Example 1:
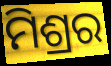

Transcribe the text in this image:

ମିଶ୍ରର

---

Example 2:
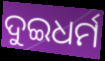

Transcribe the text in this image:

ଦୁଇଧର୍ମ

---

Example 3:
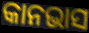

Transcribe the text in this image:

କାନଭାସ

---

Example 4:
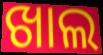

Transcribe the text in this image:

ଖାଲ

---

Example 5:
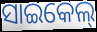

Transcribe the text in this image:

ସାଇକେଲ୍